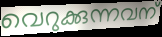
വെറുക്കുന്നവന്